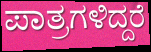
ಪಾತ್ರಗಳಿದ್ದರೆ